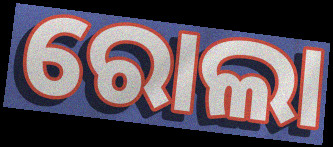
ରୋଲା